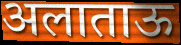
अलाताऊ